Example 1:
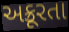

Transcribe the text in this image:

અક્રૂરતા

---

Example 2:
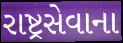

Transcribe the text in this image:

રાષ્ટ્રસેવાના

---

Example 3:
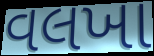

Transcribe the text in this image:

વલખા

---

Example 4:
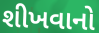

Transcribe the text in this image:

શીખવાનો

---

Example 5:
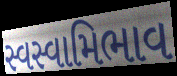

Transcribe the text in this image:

સ્વસ્વામિભાવ